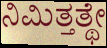
ನಿಮಿತ್ತತ್ಥೇ